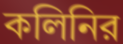
কলিনির